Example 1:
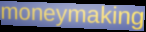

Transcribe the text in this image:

moneymaking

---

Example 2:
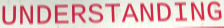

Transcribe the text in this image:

UNDERSTANDING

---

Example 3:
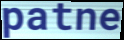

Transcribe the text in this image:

patne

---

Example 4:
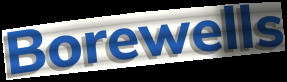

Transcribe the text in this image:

Borewells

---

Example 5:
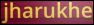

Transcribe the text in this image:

jharukhe